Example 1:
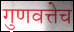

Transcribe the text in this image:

गुणवत्तेच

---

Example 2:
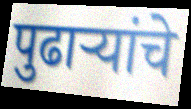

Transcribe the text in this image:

पुढाऱ्यांचे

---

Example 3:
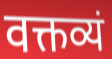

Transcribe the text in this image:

वक्तव्यं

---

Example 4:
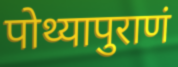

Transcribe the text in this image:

पोथ्यापुराणं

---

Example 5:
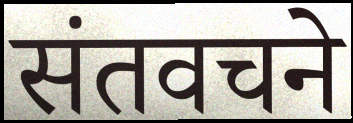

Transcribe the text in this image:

संतवचने